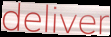
deliver